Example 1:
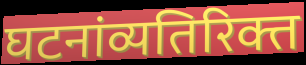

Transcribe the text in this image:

घटनांव्यतिरिक्त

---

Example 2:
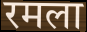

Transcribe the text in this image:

रमला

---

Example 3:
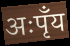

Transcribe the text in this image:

अःपृँय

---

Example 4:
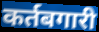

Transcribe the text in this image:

कर्तबगारी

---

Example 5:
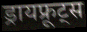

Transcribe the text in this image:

ड्रायफ्रूट्स